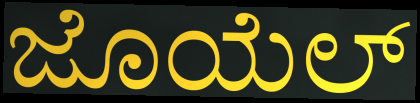
ಜೊಯೆಲ್